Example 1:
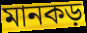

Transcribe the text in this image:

মানকড়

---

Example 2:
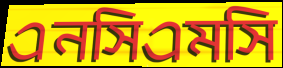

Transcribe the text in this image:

এনসিএমসি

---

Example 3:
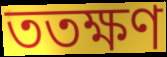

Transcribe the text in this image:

ততক্ষণ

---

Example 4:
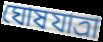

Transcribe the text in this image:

ঘোষযাত্রা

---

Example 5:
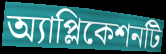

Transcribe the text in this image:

অ্যাপ্লিকেশনটি